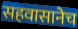
सहवासानेच